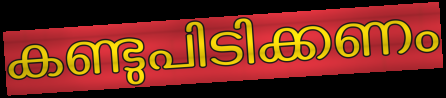
കണ്ടുപിടിക്കണം